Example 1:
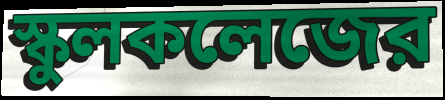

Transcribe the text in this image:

স্কুলকলেজের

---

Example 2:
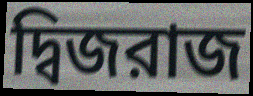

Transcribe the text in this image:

দ্বিজরাজ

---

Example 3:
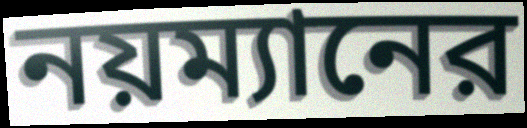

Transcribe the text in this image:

নয়ম্যানের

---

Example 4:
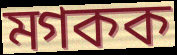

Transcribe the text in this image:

মগকক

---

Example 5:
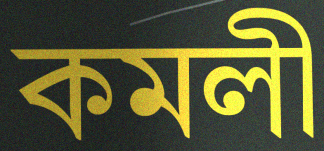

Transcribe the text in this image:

কমলী